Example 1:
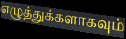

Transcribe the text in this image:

எழுத்துக்களாகவும்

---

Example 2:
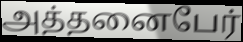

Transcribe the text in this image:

அத்தனைபேர்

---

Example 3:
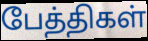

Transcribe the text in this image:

பேத்திகள்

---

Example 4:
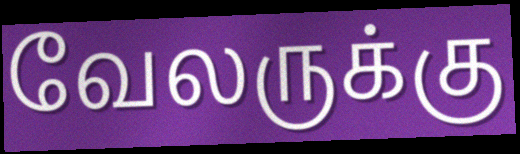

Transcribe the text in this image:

வேலருக்கு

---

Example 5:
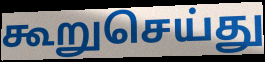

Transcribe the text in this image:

கூறுசெய்து